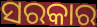
ସରକାର